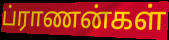
ப்ராணன்கள்